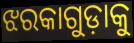
ଝରକାଗୁଡ଼ାକୁ